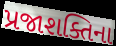
પ્રજાશક્તિના